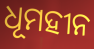
ଧୂମହୀନ